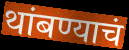
थांबण्याचं